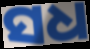
ସଧ